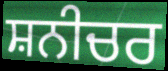
ਸ਼ਨੀਚਰ